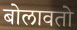
बोलावतो